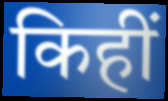
किहीं